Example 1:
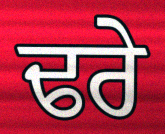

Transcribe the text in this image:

ਢਰੇ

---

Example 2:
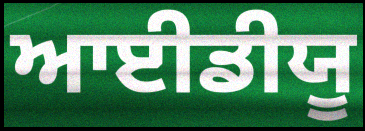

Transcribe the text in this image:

ਆਈਡੀਯੂ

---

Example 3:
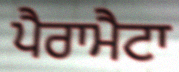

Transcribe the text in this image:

ਪੈਰਾਮੈਟਾ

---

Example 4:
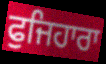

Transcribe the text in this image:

ਫੁਜਿਹਾਰਾ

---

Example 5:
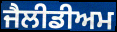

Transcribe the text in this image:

ਜੈਲੀਡੀਅਮ